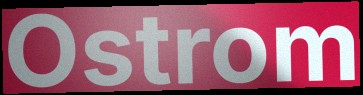
Ostrom